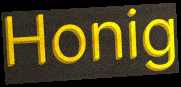
Honig